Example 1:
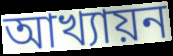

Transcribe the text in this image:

আখ্যায়ন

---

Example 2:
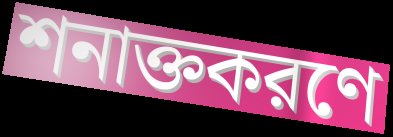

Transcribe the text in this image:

শনাক্তকরণে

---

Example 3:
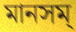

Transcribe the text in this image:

মানসম্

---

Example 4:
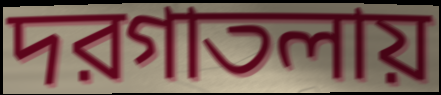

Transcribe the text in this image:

দরগাতলায়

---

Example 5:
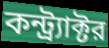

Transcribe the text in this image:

কন্ট্র্যাক্টর